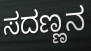
ಸದಣ್ಣನ